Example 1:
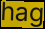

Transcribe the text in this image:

hag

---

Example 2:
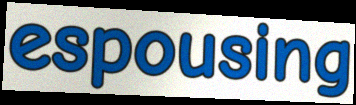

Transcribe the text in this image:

espousing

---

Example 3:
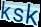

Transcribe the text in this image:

ksk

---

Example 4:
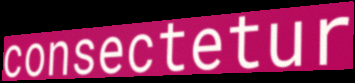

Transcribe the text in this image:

consectetur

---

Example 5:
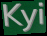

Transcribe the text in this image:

Kyi